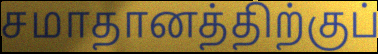
சமாதானத்திற்குப்